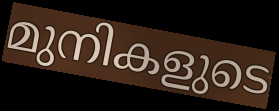
മുനികളുടെ